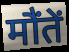
मौंतें